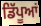
ਡਿੱਪੂਆਂ